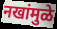
नखांमुळे